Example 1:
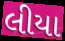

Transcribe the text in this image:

લીયા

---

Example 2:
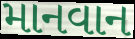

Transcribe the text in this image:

માનવાન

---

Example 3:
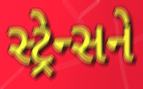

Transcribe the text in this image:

સ્ટ્રેન્સને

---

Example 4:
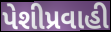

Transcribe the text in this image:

પેશીપ્રવાહી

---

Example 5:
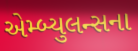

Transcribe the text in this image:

એમ્બ્યુલન્સના